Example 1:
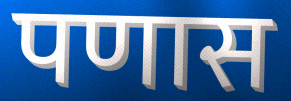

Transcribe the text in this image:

पणास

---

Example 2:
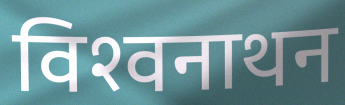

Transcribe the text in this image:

विश्वनाथन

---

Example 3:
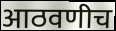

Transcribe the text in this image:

आठवणीच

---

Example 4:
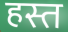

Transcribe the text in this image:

हस्त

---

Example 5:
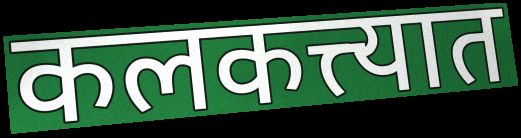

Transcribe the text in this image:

कलकत्त्यात